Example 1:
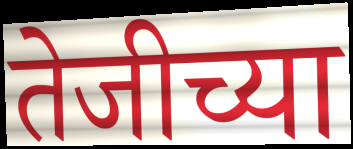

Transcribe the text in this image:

तेजीच्या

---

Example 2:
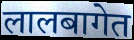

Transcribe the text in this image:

लालबागेत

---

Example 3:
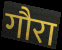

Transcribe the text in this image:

गौरा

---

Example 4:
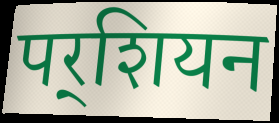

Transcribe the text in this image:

पर्शियन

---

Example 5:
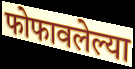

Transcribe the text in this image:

फोफावलेल्या